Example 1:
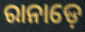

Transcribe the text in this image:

ରାନାଡ଼େ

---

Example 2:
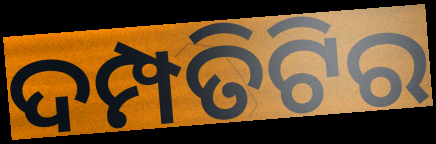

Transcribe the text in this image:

ଦମ୍ପତିଟିର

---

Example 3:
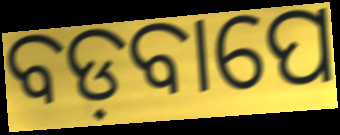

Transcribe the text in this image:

ବଡ଼ବାପେ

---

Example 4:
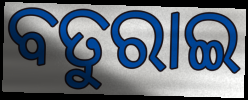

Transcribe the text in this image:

ବତୁରାଇ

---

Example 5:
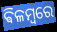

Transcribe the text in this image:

ଵିଳମ୍ବରେ